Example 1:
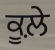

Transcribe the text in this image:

ਕੂਲ਼ੇ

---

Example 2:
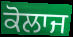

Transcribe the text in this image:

ਕੋਲਾਜ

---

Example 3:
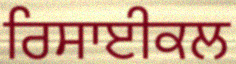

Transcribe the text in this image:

ਰਿਸਾਈਕਲ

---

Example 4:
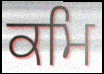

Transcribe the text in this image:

ਕਮਿ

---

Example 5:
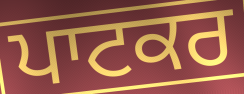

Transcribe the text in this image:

ਪਾਟਕਰ